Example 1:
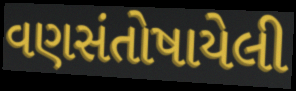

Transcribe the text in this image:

વણસંતોષાયેલી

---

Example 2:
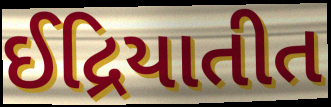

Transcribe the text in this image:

ઈદ્રિયાતીત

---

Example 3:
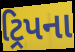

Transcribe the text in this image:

ટ્રિપના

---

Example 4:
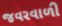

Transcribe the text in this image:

જવરવાળી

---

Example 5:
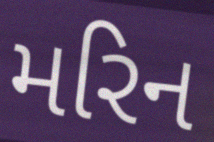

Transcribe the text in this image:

મરિન